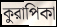
কুরাপিকা